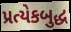
પ્રત્યેકબુદ્ધ